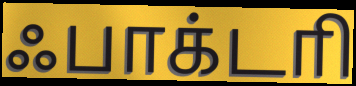
ஃபாக்டரி